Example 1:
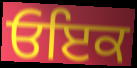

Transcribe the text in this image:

ਓਇਕ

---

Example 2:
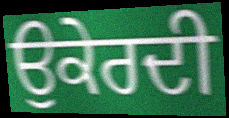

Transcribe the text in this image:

ਉਕੇਰਦੀ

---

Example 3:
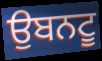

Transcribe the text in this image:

ਉਬਨਟੂ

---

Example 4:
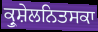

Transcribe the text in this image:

ਕ੍ਰੁਸ਼ੇਲਨਿਤਸਕਾ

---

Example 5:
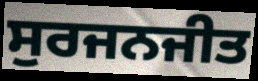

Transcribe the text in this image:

ਸੁਰਜਨਜੀਤ